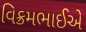
વિક્રમભાઈએ